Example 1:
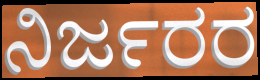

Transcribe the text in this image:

ನಿರ್ಜರರ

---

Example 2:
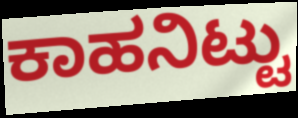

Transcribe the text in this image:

ಕಾಹನಿಟ್ಟು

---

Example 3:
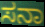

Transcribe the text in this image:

ಸನಾ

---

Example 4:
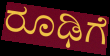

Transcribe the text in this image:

ರೂಢಿಗೆ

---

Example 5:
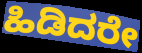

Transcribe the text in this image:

ಹಿಡಿದರೇ